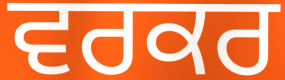
ਵਰਕਰ